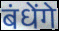
बंधेंगे